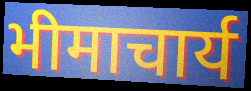
भीमाचार्य